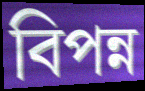
বিপন্ন